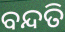
ବନ୍ଦତି